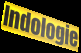
Indologie